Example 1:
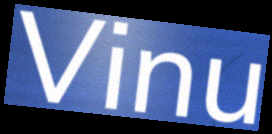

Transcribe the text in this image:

Vinu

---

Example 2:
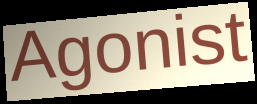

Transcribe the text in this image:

Agonist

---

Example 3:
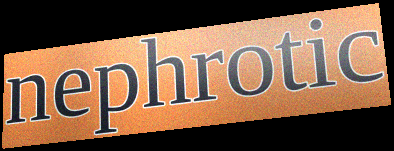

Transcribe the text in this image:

nephrotic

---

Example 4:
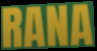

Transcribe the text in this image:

RANA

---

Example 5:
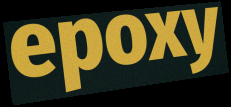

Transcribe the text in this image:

epoxy